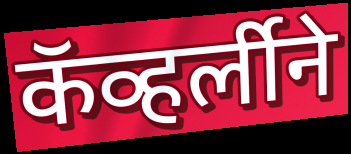
कॅव्हर्लीने